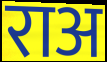
राअ